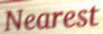
Nearest